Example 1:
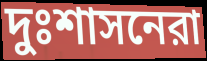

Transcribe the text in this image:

দুঃশাসনেরা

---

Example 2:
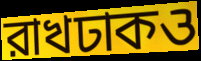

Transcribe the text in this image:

রাখঢাকও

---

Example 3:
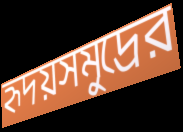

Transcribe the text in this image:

হৃদয়সমুদ্রের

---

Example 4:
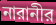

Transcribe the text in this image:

নারানীর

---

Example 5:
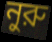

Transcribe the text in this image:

নুরু